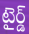
టైర్డ్